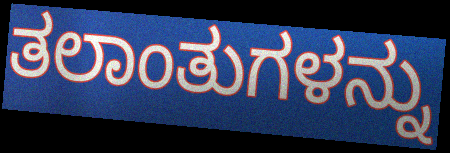
ತಲಾಂತುಗಳನ್ನು